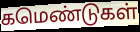
கமெண்டுகள்